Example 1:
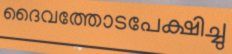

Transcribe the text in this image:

ദൈവത്തോടപേക്ഷിച്ചു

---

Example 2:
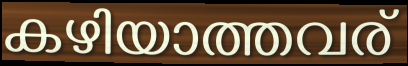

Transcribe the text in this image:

കഴിയാത്തവര്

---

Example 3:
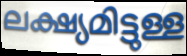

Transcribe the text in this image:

ലക്ഷ്യമിട്ടുള്ള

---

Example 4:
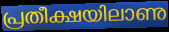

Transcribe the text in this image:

പ്രതീക്ഷയിലാണു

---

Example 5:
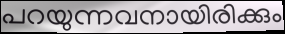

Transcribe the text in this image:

പറയുന്നവനായിരിക്കും